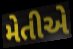
મેતીએ